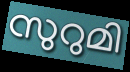
സുറുമി